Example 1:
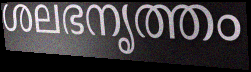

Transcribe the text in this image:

ശലഭനൃത്തം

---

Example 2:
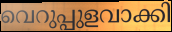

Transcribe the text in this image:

വെറുപ്പുളവാക്കി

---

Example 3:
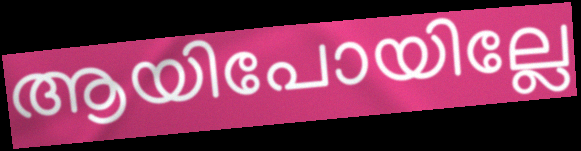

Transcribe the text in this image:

ആയിപോയില്ലേ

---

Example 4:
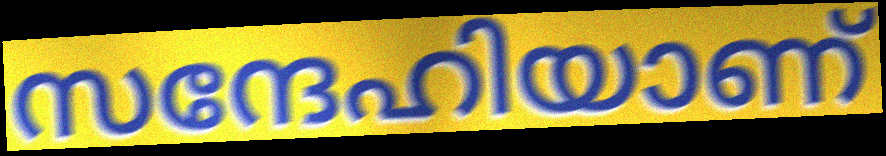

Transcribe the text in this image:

സന്ദേഹിയാണ്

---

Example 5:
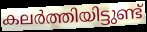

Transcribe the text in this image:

കലർത്തിയിട്ടുണ്ട്